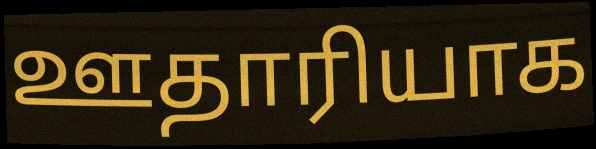
ஊதாரியாக